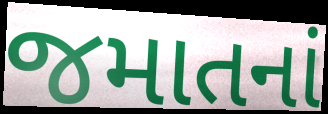
જમાતનાં